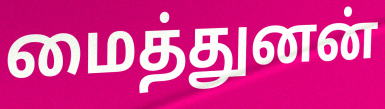
மைத்துனன்